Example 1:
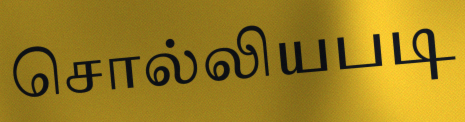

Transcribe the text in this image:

சொல்லியபடி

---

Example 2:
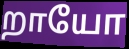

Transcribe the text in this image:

றாயோ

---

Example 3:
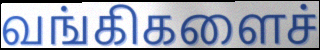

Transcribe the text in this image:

வங்கிகளைச்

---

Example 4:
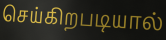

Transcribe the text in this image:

செய்கிறபடியால்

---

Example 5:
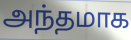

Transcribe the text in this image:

அந்தமாக